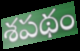
శపథం